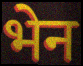
भेन